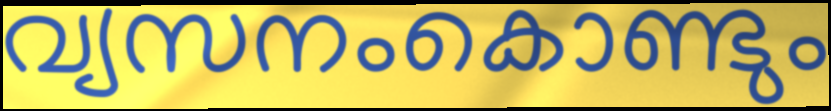
വ്യസനംകൊണ്ടും